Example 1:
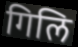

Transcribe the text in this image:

गिलि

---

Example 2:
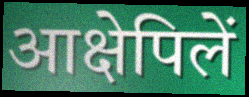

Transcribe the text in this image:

आक्षेपिलें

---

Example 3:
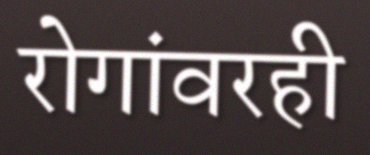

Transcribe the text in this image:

रोगांवरही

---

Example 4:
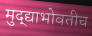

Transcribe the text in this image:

मुद्द्याभोवतीच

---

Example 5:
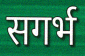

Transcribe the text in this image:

सगर्भ